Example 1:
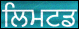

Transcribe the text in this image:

ਲਿਮਟਡ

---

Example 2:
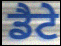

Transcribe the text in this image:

ਡੈਟੇ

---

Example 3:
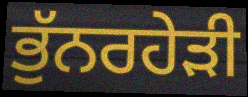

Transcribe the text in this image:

ਭੁੱਨਰਹੇੜੀ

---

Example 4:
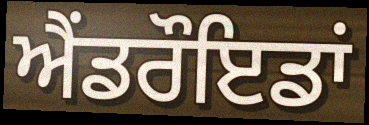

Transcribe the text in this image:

ਐਂਡਰੌਇਡਾਂ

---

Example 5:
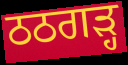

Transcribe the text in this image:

ਠਠਗੜ੍ਹ